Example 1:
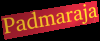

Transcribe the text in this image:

Padmaraja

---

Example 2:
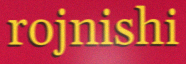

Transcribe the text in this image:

rojnishi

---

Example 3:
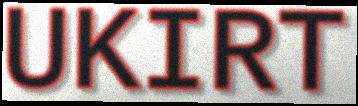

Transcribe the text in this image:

UKIRT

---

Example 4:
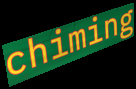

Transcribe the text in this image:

chiming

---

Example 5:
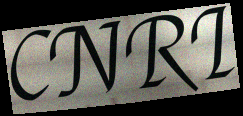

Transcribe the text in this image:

CNRI